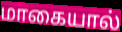
மாகையால்